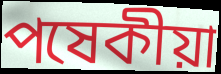
পষেকীয়া